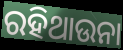
ରହିଥାଉନା